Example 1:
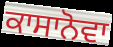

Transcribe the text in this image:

ਕਾਸਾਨੋਵਾ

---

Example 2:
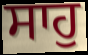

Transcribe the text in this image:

ਸਾਹੁ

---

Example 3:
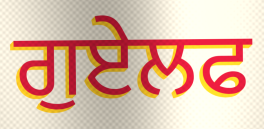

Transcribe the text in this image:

ਗੁਏਲਫ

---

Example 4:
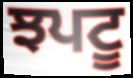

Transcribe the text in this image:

ਝਪਟੂ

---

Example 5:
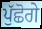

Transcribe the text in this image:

ਪੁੱਛੋਗੇ